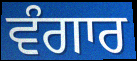
ਵੰਗਾਰ